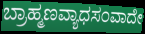
ಬ್ರಾಹ್ಮಣವ್ಯಾಧಸಂವಾದೇ